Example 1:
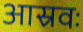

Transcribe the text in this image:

आस्रवः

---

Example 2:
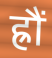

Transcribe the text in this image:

ह्रौं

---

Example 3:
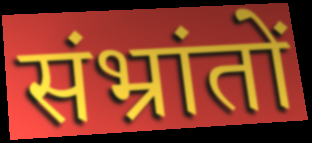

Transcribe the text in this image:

संभ्रांतों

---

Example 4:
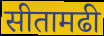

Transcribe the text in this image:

सीतामढी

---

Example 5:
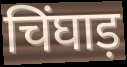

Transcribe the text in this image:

चिंघाड़